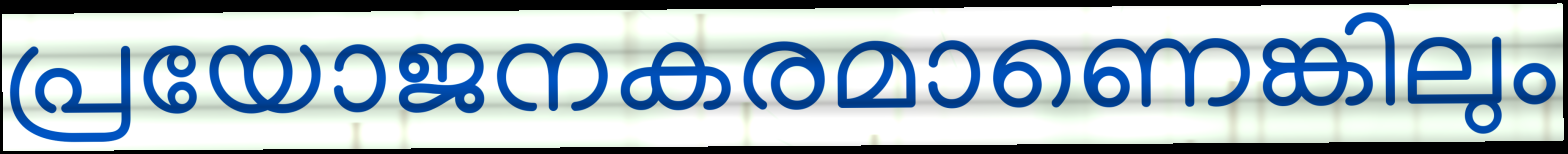
പ്രയോജനകരമാണെങ്കിലും